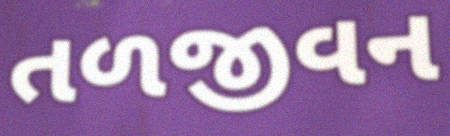
તળજીવન